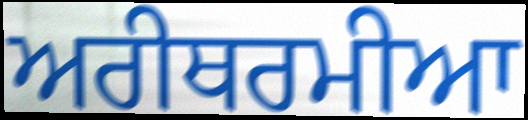
ਅਰੀਥਰਮੀਆ